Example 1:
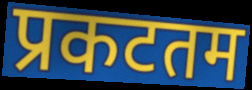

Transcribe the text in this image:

प्रकटतम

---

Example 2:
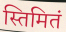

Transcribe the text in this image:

स्तिमितं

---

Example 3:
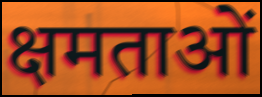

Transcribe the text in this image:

क्षमताओं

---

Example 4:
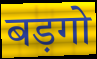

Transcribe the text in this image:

बड़गो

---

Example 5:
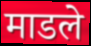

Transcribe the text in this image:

माडले